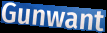
Gunwant